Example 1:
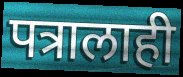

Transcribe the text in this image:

पत्रालाही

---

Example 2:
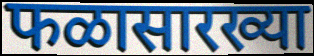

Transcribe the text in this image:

फळासारख्या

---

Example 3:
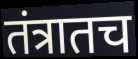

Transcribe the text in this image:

तंत्रातच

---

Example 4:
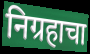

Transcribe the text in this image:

निग्रहाचा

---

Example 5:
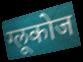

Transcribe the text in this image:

ग्लूकोज